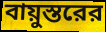
বায়ুস্তরের